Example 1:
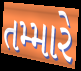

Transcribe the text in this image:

તમ્મારે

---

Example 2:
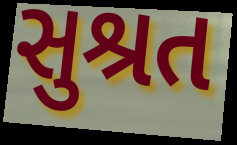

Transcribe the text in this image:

સુશ્રત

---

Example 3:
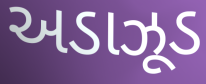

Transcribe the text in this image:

અડાઝૂડ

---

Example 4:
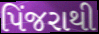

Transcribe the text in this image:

પિંજરાથી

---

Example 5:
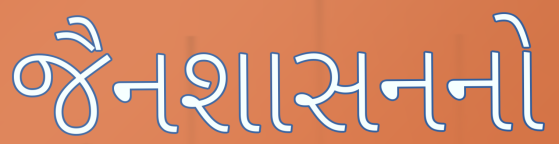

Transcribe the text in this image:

જૈનશાસનનો